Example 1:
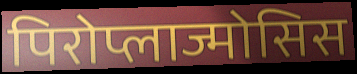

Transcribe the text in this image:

पिरोप्लाज्मोसिस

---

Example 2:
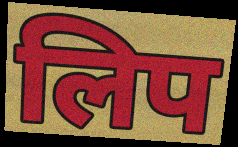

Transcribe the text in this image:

लिप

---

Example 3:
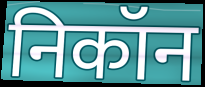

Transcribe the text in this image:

निकॉन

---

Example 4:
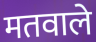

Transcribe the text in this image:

मतवाले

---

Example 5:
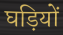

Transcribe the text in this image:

घड़ियों